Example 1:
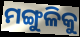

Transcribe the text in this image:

ମଙ୍ଗୁଳିକୁ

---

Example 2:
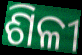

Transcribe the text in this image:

ଶିଳୀ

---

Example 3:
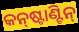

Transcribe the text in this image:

କନ୍‌ଷ୍ଟାଣ୍ଟିନ୍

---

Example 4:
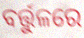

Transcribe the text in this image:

ବର୍ତ୍ତୁଳରେ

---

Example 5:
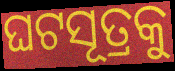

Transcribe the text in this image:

ଘଟସୂତ୍ରକୁ